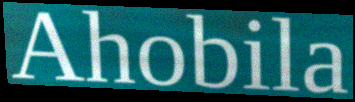
Ahobila